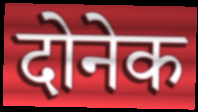
दोनेक